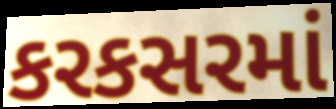
કરકસરમાં